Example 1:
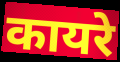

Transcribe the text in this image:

कायरे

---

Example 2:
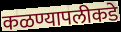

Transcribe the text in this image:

कळण्यापलीकडे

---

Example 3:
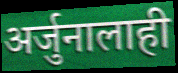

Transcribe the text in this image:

अर्जुनालाही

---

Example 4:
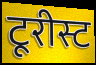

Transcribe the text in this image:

टूरीस्ट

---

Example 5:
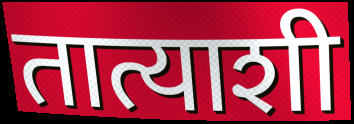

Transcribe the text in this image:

तात्याशी